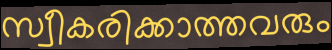
സ്വീകരിക്കാത്തവരും